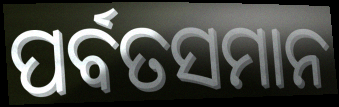
ପର୍ବତସମାନ